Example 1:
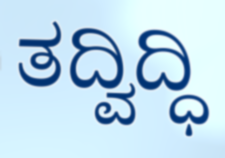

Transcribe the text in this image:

ತದ್ವಿದ್ಧಿ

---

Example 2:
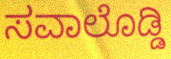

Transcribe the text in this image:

ಸವಾಲೊಡ್ಡಿ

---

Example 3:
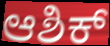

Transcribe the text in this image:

ಆಶಿಕ್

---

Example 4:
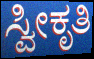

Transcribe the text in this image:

ಸ್ವೀಕೃತಿ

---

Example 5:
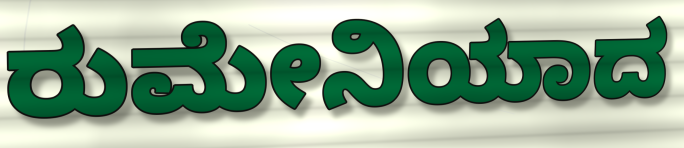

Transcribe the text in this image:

ರುಮೇನಿಯಾದ